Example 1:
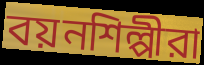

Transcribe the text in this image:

বয়নশিল্পীরা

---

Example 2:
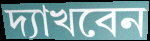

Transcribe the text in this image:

দ্যাখবেন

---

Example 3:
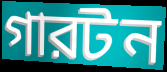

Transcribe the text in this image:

গারটন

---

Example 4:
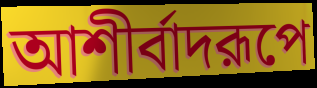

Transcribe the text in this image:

আশীর্বাদরূপে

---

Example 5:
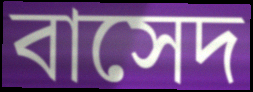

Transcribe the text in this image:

বাসেদ